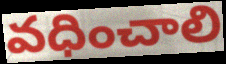
వధించాలి